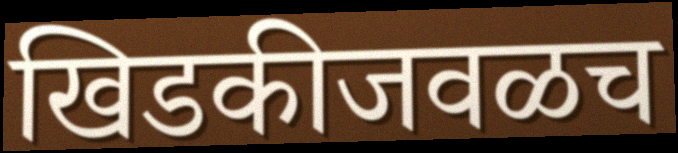
खिडकीजवळच